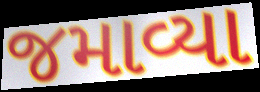
જમાવ્યા